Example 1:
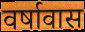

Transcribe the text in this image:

वर्षावास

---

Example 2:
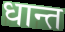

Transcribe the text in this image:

धान्त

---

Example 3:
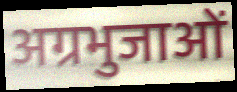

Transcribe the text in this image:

अग्रभुजाओं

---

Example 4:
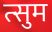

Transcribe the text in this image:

त्सुम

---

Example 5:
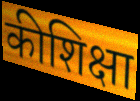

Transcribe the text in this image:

कीशिक्षा